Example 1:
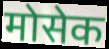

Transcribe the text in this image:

मोसेक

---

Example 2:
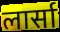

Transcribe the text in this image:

लार्सा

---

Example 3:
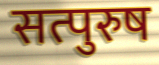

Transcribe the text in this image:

सत्पुरुष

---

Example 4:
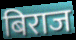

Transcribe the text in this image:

बिराज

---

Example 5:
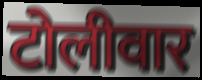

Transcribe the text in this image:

टोलीवार